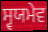
ਸ੍ਵਯਮੇਵ